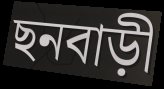
ছনবাড়ী